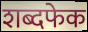
शब्दफेक